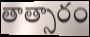
తాత్సారం